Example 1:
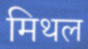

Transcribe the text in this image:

मिथल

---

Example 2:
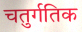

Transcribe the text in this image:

चतुर्गतिक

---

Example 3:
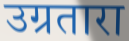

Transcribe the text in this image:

उग्रतारा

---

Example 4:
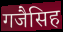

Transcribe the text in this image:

गजैसिह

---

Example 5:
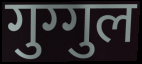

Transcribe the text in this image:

गुग्‍गुल